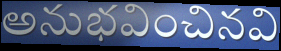
అనుభవించినవి